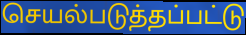
செயல்படுத்தப்பட்டு